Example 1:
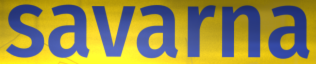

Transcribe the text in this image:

savarna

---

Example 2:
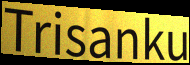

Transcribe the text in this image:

Trisanku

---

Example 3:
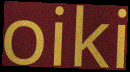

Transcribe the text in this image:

oiki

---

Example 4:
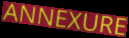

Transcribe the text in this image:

ANNEXURE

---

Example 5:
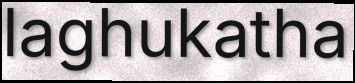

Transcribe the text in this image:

laghukatha